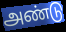
அண்டு